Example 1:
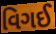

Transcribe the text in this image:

વિગઈ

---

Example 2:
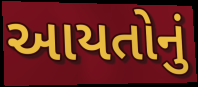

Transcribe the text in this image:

આયતોનું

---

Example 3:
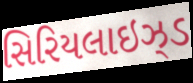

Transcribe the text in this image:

સિરિયલાઇઝ્ડ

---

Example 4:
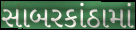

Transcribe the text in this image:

સાબરકાંઠામાં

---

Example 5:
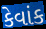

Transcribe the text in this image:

કેવાંક